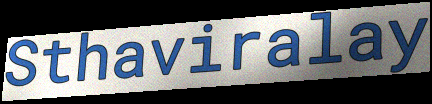
Sthaviralay